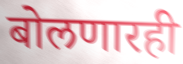
बोलणारही